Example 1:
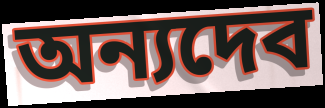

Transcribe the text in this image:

অন্যদেব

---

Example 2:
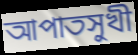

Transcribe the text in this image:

আপাতসুখী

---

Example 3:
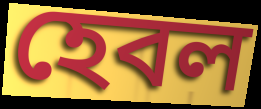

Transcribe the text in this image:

হেবল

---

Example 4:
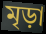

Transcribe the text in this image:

মৃড়া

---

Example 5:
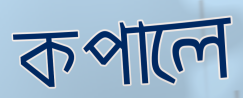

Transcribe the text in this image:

কপালে